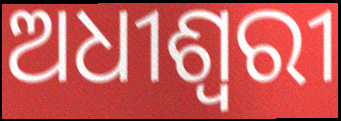
ଅଧୀଶ୍ୱରୀ